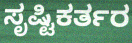
ಸೃಷ್ಟಿಕರ್ತರ